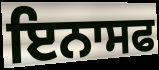
ਇਨਾਸਫ